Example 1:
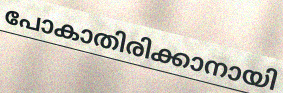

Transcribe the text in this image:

പോകാതിരിക്കാനായി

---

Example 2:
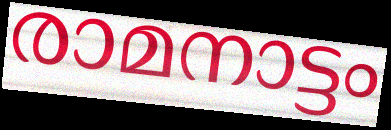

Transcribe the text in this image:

രാമനാട്ടം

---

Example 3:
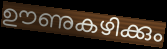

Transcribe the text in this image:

ഊണുകഴിക്കും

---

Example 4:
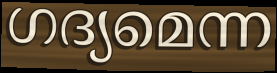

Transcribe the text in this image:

ഗദ്യമെന്ന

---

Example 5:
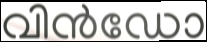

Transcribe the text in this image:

വിൻഡോ